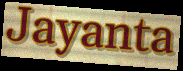
Jayanta